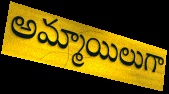
అమ్మాయిలుగా